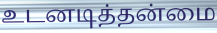
உடனடித்தன்மை